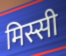
मिस्सी